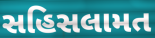
સહિસલામત